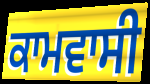
ਕਾਮਵਾਸੀ